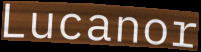
Lucanor